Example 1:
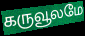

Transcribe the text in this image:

கருவூலமே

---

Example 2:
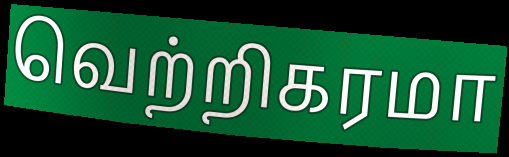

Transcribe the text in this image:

வெற்றிகரமா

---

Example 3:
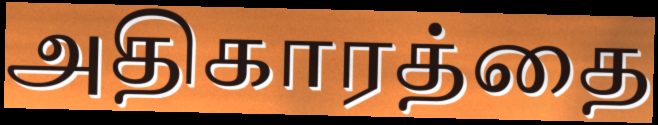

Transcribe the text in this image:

அதிகாரத்தை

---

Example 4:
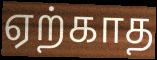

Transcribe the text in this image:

ஏற்காத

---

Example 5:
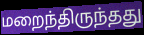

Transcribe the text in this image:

மறைந்திருந்தது